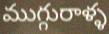
ముగ్గురాళ్ళ